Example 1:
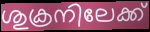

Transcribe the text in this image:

ശുക്രനിലേക്ക്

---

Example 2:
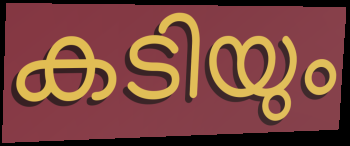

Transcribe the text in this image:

കടിയും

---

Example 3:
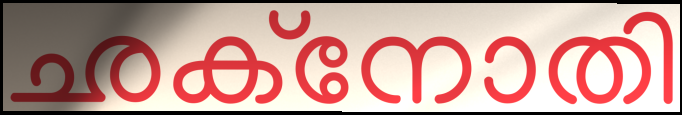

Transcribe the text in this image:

ഛക്നോതി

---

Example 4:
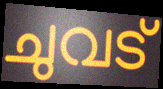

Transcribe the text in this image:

ചുവട്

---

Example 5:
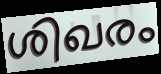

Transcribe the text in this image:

ശിഖരം